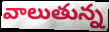
వాలుతున్న